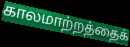
காலமாற்றத்தைக்